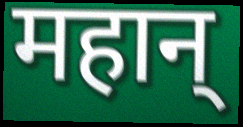
महान्